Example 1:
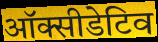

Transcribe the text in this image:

ऑक्सीडेटिव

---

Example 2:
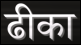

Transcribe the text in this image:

ढीका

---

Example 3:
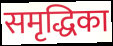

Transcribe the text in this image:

समृद्धिका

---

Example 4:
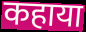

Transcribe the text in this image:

कहाया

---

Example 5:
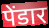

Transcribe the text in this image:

पेंडार